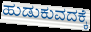
ಹುಡುಕುವದಕ್ಕೆ